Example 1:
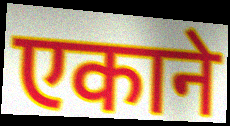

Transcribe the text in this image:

एकाने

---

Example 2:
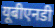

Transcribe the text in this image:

यूबीएनडी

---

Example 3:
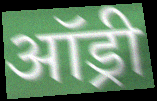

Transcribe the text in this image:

ऑड्री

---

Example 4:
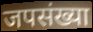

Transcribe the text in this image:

जपसंख्या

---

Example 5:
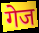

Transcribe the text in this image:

गेज